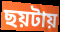
ছয়টায়